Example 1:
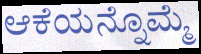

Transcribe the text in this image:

ಆಕೆಯನ್ನೊಮ್ಮೆ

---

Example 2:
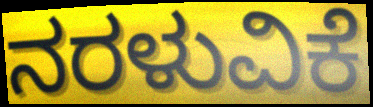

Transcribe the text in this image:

ನರಳುವಿಕೆ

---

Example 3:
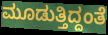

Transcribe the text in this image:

ಮೂಡುತ್ತಿದ್ದಂತೆ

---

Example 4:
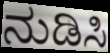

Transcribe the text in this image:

ನುಡಿಸಿ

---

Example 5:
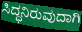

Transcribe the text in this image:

ಸಿದ್ಧನಿರುವುದಾಗಿ